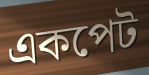
একপেট